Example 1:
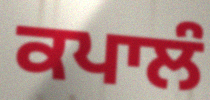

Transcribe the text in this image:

ਕਪਾਲੰ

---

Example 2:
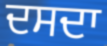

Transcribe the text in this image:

ਦਸਦਾ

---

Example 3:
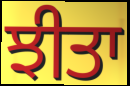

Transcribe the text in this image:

ਝੀਤਾ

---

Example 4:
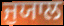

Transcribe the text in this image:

ਜੁਯਾਲ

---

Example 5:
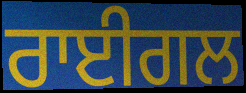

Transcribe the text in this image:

ਰਾਈਗਲ